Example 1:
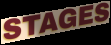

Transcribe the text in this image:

STAGES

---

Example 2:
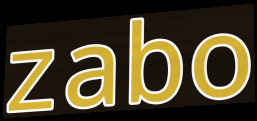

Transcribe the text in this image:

zabo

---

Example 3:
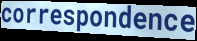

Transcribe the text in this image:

correspondence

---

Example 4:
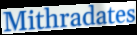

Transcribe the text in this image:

Mithradates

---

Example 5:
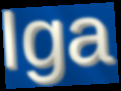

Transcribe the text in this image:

Iga